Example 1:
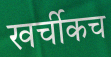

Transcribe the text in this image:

खर्चीकच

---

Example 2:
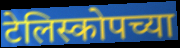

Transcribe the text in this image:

टेलिस्कोपच्या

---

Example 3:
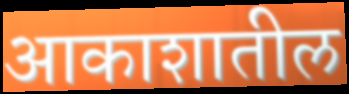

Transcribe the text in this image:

आकाशातील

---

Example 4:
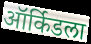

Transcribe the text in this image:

ऑर्किडला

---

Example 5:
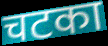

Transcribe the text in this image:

चटका